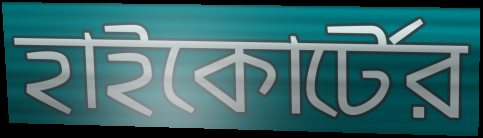
হাইকোর্টের